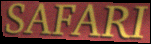
SAFARI